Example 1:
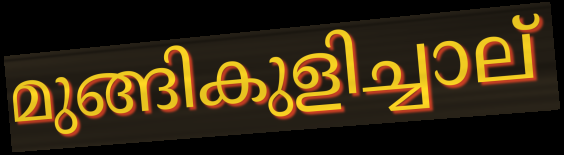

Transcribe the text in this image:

മുങ്ങികുളിച്ചാല്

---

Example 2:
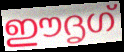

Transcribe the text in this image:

ഈദൃഗ്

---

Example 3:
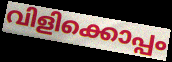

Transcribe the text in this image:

വിളിക്കൊപ്പം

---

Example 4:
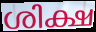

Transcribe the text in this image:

ശിക്ഷ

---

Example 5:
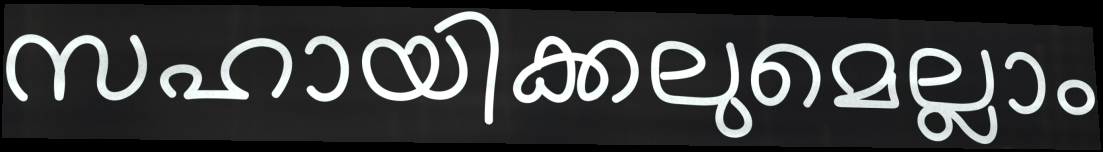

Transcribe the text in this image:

സഹായിക്കലുമെല്ലാം